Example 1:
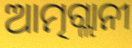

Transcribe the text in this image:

ଆତ୍ମଗ୍ଲାନୀ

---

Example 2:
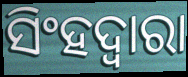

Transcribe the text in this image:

ସିଂହଦ୍ୱାରା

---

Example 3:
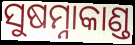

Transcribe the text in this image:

ସୁଷମ୍ନାକାଣ୍ଡ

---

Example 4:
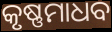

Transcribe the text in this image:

କୃଷ୍ଣମାଧବ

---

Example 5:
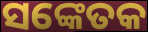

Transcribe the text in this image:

ସଙ୍କେତକ